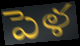
పెళ